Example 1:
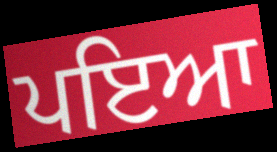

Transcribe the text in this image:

ਪਇਆ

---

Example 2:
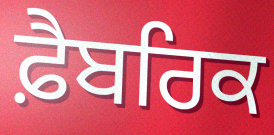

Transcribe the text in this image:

ਫ਼ੈਬਰਿਕ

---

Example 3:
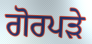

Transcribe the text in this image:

ਗੋਰਪੜੇ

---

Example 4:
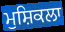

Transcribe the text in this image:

ਮੁਸ਼ਿਕਲਾ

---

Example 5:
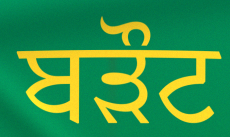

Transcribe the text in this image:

ਬੜੌਟ